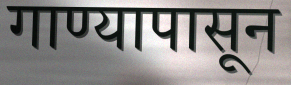
गाण्यापासून